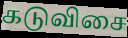
கடுவிசை